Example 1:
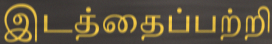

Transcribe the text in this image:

இடத்தைப்பற்றி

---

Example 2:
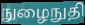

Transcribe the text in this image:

நுழைநுதி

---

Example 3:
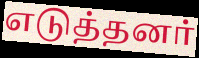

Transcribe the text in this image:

எடுத்தனர்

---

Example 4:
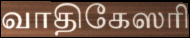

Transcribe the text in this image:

வாதிகேஸரி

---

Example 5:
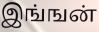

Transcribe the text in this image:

இங்ஙன்